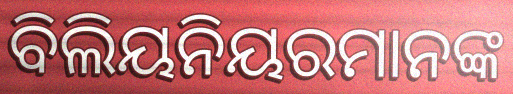
ବିଲିୟନିୟରମାନଙ୍କ